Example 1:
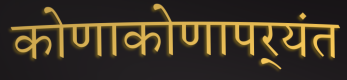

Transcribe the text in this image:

कोणाकोणापर्यंत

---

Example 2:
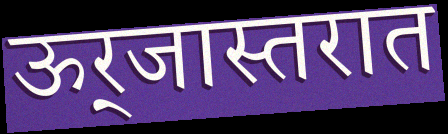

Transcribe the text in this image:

ऊर्जास्तरात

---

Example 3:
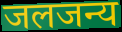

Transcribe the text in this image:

जलजन्य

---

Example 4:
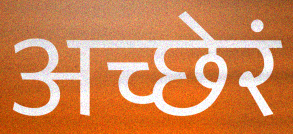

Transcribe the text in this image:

अच्छेरं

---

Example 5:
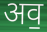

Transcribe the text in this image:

अव॒